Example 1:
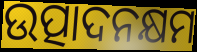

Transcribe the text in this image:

ଉତ୍ପାଦନକ୍ଷମ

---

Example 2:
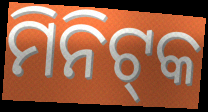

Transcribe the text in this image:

ମିନିଟ୍‌କ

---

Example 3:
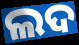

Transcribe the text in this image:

ଲଦ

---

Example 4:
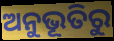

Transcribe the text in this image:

ଅନୁଭୂତିରୁ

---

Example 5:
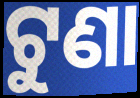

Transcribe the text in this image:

ଟୁଣା